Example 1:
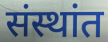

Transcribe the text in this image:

संस्थांत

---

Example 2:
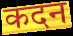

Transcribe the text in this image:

कदन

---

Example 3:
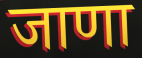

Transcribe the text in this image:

जाणा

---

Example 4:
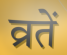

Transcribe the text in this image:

व्रतें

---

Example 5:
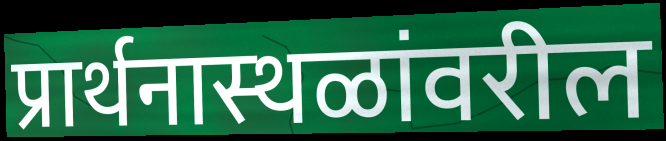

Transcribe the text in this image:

प्रार्थनास्थळांवरील